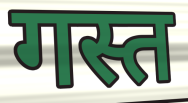
गस्त